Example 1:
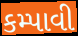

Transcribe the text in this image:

કમ્પાવી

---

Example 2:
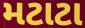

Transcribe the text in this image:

મટાટા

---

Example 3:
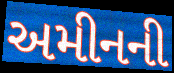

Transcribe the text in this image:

અમીનની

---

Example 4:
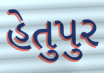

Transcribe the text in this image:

હેતુપુર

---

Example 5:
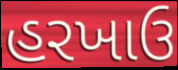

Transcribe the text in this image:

હરખાઉ